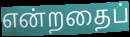
என்றதைப்